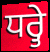
ਧਰ੍ਤੇ